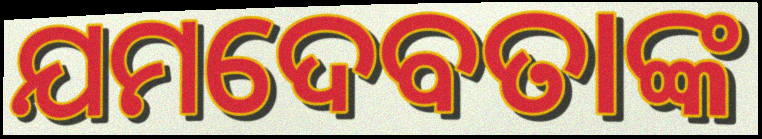
ଯମଦେବତାଙ୍କ